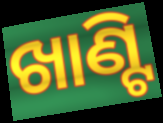
ଖାଣ୍ଟି